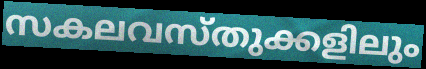
സകലവസ്തുക്കളിലും